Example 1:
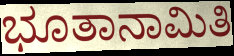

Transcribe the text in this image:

ಭೂತಾನಾಮಿತಿ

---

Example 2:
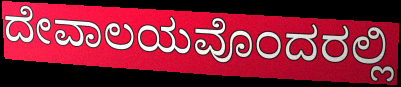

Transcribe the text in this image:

ದೇವಾಲಯವೊಂದರಲ್ಲಿ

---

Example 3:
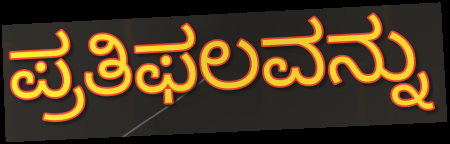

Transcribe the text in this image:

ಪ್ರತಿಫಲವನ್ನು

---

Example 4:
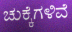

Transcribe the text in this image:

ಚುಕ್ಕೆಗಳಿವೆ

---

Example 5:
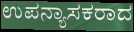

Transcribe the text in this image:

ಉಪನ್ಯಾಸಕರಾದ